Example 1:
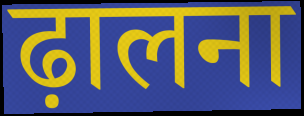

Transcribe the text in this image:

ढ़ालना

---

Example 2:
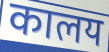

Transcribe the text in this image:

कालय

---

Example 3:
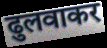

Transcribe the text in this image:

ढुलवाकर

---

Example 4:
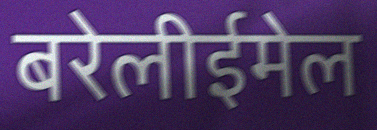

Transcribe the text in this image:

बरेलीईमेल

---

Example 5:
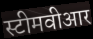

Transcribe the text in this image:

स्टीमवीआर